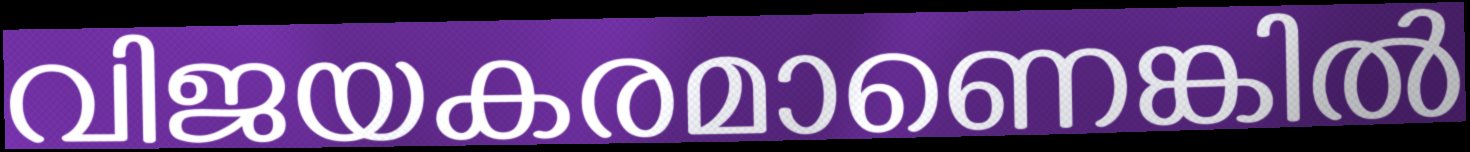
വിജയകരമാണെങ്കിൽ